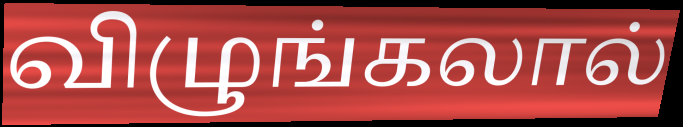
விழுங்கலால்